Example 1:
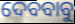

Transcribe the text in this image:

ଦେବବାବୁ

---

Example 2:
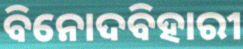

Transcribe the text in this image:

ବିନୋଦବିହାରୀ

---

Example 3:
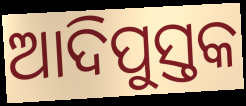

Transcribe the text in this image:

ଆଦିପୁସ୍ତକ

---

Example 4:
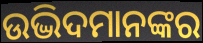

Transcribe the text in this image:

ଉଦ୍ଭିଦମାନଙ୍କର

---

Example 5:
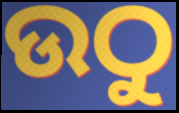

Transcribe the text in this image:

ଉଠୁ